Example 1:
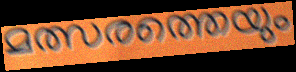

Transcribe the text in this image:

മത്സരത്തെയും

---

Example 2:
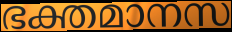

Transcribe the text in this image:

ഭക്തമാനസ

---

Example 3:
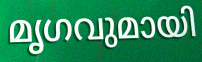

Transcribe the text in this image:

മൃഗവുമായി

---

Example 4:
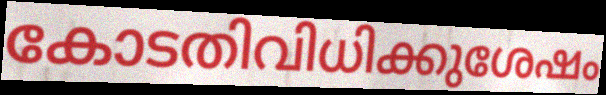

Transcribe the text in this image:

കോടതിവിധിക്കുശേഷം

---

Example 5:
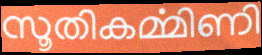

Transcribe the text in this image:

സൂതികൎമ്മിണി